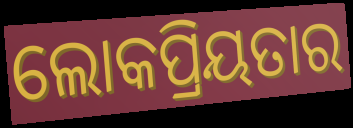
ଲୋକପ୍ରିୟତାର